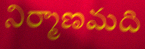
నిర్మాణమది